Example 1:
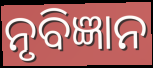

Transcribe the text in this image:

ନୃବିଜ୍ଞାନ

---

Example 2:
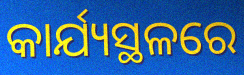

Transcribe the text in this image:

କାର୍ଯ୍ୟସ୍ଥଳରେ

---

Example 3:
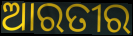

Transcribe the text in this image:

ଆରତୀର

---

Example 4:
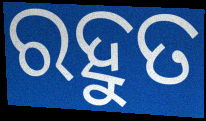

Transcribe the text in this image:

ରହୁତ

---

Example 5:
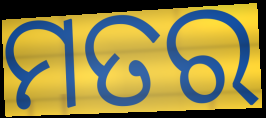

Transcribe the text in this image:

ମତର